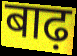
बाढ़